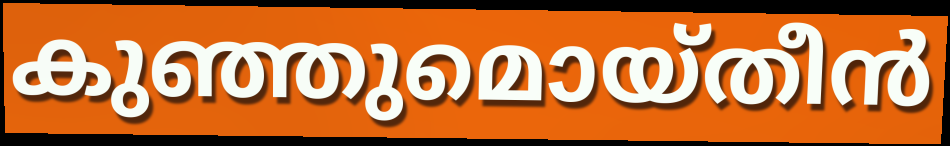
കുഞ്ഞുമൊയ്തീൻ